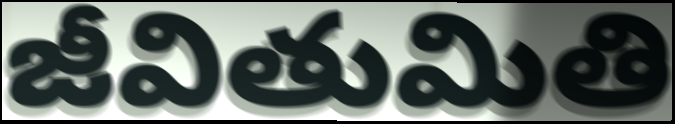
జీవితుమితి